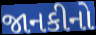
જાનકીનો